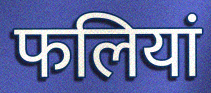
फलियां